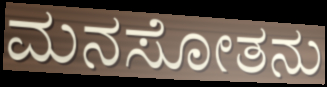
ಮನಸೋತನು